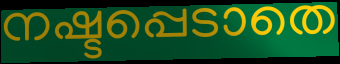
നഷ്ടപ്പെടാതെ